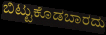
ಬಿಟ್ಟುಕೊಡಬಾರದು